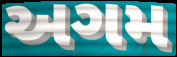
અગમ